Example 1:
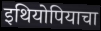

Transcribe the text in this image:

इथियोपियाचा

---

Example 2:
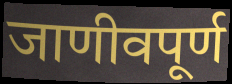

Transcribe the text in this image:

जाणीवपूर्ण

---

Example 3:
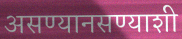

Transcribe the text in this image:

असण्यानसण्याशी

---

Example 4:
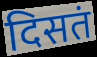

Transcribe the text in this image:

दिसतं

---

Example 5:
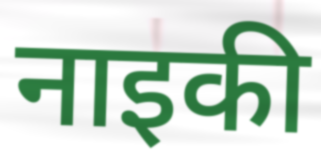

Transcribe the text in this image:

नाइकी